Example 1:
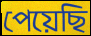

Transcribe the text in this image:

পেয়েছি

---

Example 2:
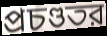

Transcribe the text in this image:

প্রচণ্ডতর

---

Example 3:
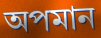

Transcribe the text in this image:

অপমান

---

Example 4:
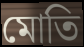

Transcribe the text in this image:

মোতি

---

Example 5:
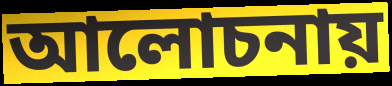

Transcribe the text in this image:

আলোচনায়